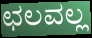
ಛಲವಲ್ಲ